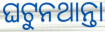
ଘଟୁନଥାନ୍ତା